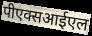
पीएक्सआईएल